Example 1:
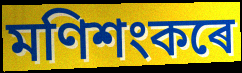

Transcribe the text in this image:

মণিশংকৰে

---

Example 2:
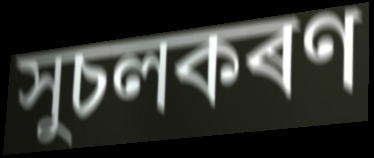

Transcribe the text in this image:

সুচলকৰণ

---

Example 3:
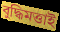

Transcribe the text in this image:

বুদ্ধিমত্তাই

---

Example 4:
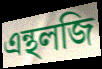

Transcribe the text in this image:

এন্থলজি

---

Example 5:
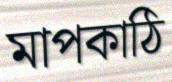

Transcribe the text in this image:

মাপকাঠি